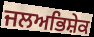
ਜਲਅਭਿਸ਼ੇਕ